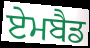
ਏਮਬੈਡ